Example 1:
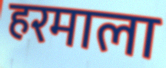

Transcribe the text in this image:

हरमाला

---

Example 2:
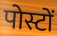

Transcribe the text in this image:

पोस्टों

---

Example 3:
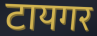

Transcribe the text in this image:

टायगर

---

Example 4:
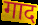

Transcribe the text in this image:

गाद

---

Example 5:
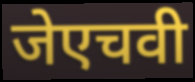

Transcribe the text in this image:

जेएचवी